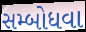
સમ્બોધવા